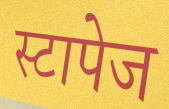
स्टापेज